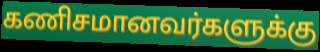
கணிசமானவர்களுக்கு